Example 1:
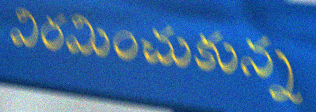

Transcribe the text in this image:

విరమించుకున్న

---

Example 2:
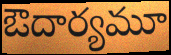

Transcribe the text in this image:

ఔదార్యమూ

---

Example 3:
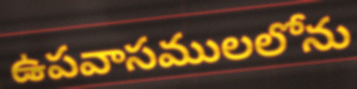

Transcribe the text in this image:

ఉపవాసములలోను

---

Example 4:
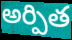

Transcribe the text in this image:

అర్పిత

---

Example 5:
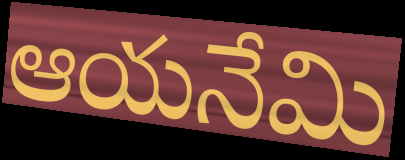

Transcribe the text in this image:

ఆయనేమి